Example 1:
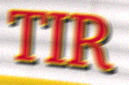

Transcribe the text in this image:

TIR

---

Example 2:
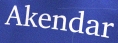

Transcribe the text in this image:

Akendar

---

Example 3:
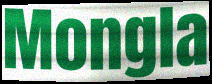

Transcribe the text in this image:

Mongla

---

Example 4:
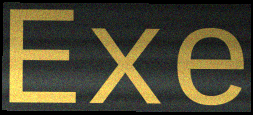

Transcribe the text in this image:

Exe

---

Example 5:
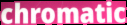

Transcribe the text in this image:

chromatic